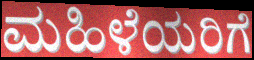
ಮಹಿಳೆಯರಿಗೆ